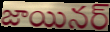
జాయినర్